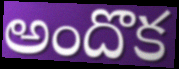
అందొక